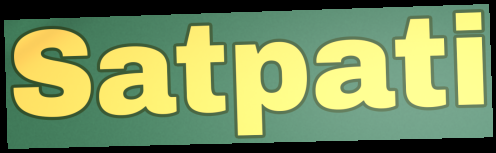
Satpati